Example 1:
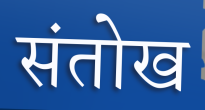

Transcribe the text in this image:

संतोख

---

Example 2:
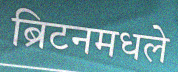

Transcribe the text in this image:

ब्रिटनमधले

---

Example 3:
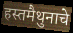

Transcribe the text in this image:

हस्तमैथुनाचे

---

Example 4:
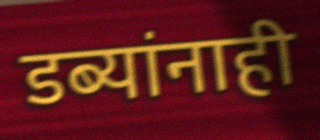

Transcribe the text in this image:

डब्यांनाही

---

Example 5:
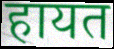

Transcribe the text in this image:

हायत